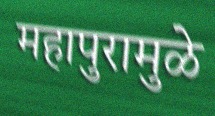
महापुरामुळे